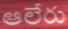
ఆలేరు